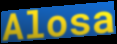
Alosa